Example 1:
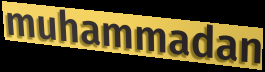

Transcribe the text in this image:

muhammadan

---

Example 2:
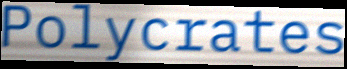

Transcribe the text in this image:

Polycrates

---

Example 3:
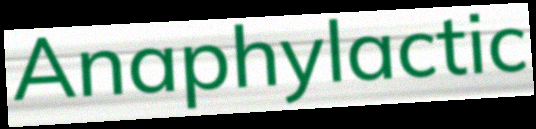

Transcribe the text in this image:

Anaphylactic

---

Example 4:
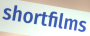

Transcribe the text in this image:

shortfilms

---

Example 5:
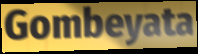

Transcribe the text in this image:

Gombeyata